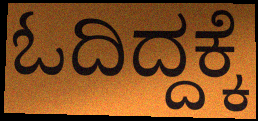
ಓದಿದ್ದಕ್ಕೆ